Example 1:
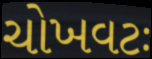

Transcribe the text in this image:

ચોખવટઃ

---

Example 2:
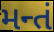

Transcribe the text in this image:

મન્તં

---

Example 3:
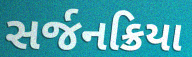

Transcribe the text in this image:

સર્જનક્રિયા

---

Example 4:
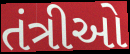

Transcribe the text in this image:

તંત્રીઓ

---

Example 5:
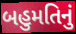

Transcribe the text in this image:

બહુમતિનું